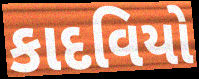
કાદવિયો